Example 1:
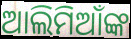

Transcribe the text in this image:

ଆଲିମିଆଁଙ୍କ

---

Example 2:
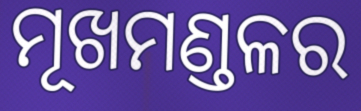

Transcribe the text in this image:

ମୂଖମଣ୍ଡଳର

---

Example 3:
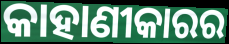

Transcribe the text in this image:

କାହାଣୀକାରର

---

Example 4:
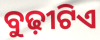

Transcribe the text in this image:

ବୁଢ଼ୀଟିଏ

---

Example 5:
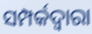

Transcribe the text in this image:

ସମ୍ପର୍କଦ୍ୱାରା